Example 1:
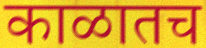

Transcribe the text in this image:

काळातच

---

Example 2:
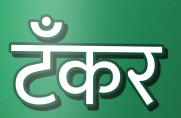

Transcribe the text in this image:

टॅँकर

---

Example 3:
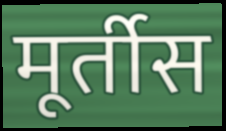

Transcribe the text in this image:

मूर्तीस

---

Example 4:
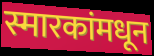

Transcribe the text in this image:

स्मारकांमधून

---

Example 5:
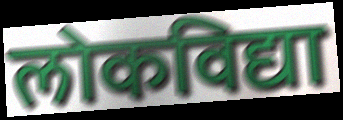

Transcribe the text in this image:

लोकविद्या